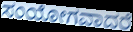
ಸಂಯೋಗವಾದರೆ